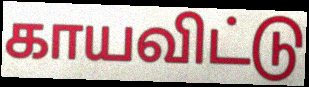
காயவிட்டு